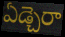
ఏడ్చెరా